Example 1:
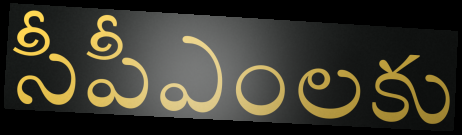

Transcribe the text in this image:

సీపీఎంలకు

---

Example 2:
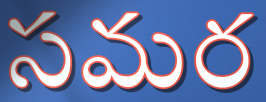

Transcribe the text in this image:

సమర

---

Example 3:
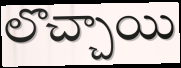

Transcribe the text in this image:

లొచ్చాయి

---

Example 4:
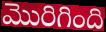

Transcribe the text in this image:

మొరిగింది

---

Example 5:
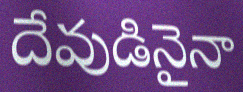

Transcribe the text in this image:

దేవుడినైనా